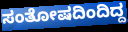
ಸಂತೋಷದಿಂದಿದ್ದ